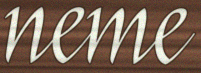
neme